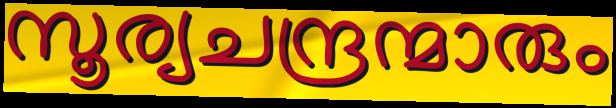
സൂര്യചന്ദ്രന്മാരും